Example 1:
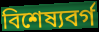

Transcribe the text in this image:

বিশেষ্যবর্গ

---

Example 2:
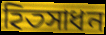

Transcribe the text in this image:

হিতসাধন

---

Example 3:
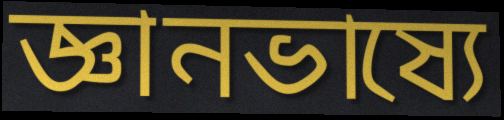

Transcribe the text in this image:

জ্ঞানভাষ্যে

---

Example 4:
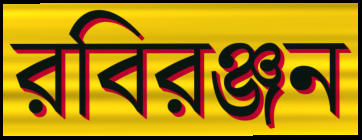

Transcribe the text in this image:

রবিরঞ্জন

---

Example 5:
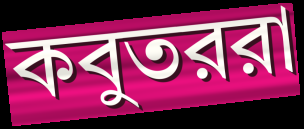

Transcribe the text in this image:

কবুতররা